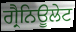
ਗ੍ਰੈਨਿਊਲੇਟ